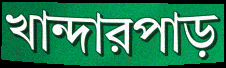
খান্দারপাড়